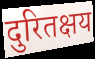
दुरितक्षय